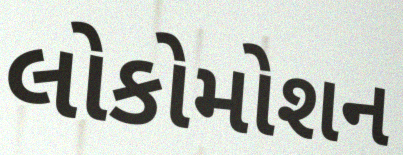
લોકોમોશન